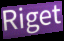
Riget